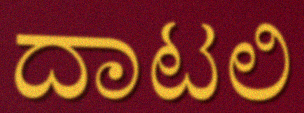
ದಾಟಲಿ